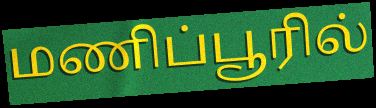
மணிப்பூரில்